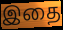
இதை